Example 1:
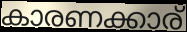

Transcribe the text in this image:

കാരണക്കാര്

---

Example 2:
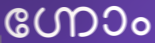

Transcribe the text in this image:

ഗ്നോം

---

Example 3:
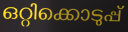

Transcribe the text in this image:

ഒറ്റിക്കൊടുപ്പ്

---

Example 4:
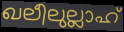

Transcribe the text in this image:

ഖലീലുല്ലാഹ്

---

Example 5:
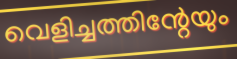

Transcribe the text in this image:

വെളിച്ചത്തിന്റേയും